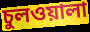
চুলওয়ালা